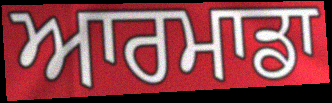
ਆਰਮਾਡਾ